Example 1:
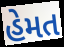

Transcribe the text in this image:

હેમત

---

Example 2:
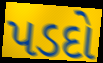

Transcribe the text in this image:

પડદો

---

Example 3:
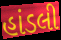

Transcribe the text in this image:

હાંડલી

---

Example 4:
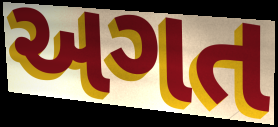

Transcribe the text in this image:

અગત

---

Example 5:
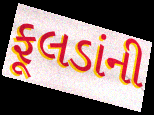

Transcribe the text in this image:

ફૂલડાંની